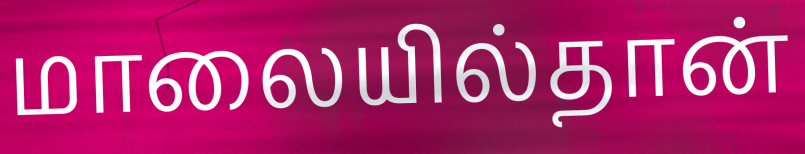
மாலையில்தான்